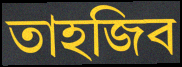
তাহজিব